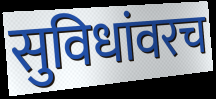
सुविधांवरच